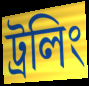
ট্রলিং